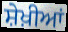
ਸ਼ੇਖ਼ੀਆਂ